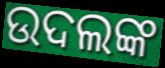
ଉଦଲଙ୍କ